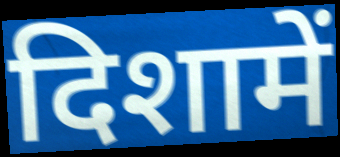
दिशामें